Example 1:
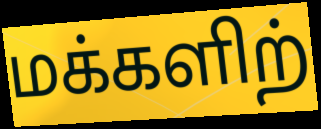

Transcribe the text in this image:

மக்களிற்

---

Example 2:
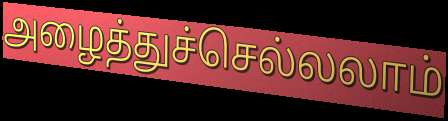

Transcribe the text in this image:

அழைத்துச்செல்லலாம்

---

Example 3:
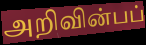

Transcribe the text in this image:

அறிவின்பப்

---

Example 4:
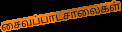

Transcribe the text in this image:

சைவப்பாடசாலைகள்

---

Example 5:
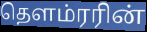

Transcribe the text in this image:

தௌம்ரரின்